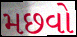
મછવો